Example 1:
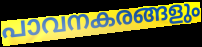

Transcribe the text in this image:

പാവനകരങ്ങളും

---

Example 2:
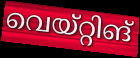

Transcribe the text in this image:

വെയ്റ്റിങ്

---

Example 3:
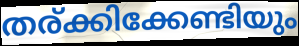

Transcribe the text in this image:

തര്ക്കിക്കേണ്ടിയും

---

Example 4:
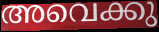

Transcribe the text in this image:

അവെക്കു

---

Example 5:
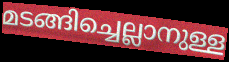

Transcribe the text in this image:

മടങ്ങിച്ചെല്ലാനുള്ള